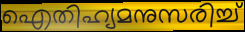
ഐതിഹ്യമനുസരിച്ച്